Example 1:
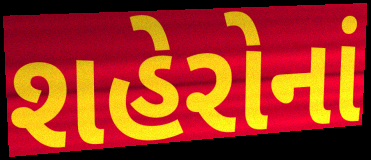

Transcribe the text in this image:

શહેરોનાં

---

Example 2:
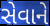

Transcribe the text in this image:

સેવાને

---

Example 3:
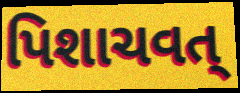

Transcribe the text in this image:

પિશાચવત્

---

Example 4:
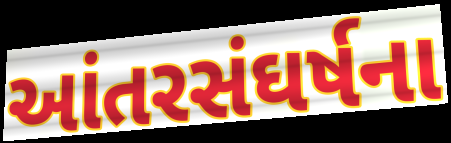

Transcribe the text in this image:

આંતરસંઘર્ષના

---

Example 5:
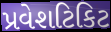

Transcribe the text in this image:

પ્રવેશટિકિટ